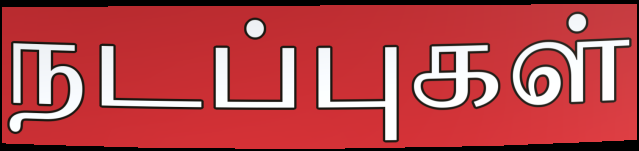
நடப்புகள்